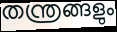
തന്ത്രങ്ങളും